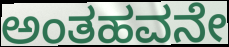
ಅಂತಹವನೇ